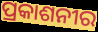
ପ୍ରକାଶନୀର